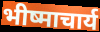
भीष्माचार्य